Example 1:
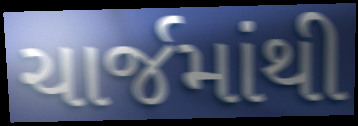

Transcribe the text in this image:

ચાર્જમાંથી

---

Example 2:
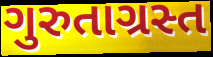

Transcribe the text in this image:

ગુરુતાગ્રસ્ત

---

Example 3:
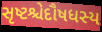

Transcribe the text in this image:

સૃષ્ટશ્ચેદૌષધસ્ય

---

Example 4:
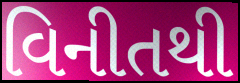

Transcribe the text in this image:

વિનીતથી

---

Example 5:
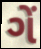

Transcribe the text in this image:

ગેં